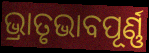
ଭ୍ରାତୃଭାବପୂର୍ଣ୍ଣ